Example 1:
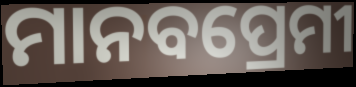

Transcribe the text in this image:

ମାନବପ୍ରେମୀ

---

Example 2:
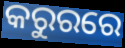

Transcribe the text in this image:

କରୁରରେ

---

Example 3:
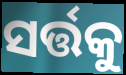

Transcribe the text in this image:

ସର୍ତ୍ତକୁ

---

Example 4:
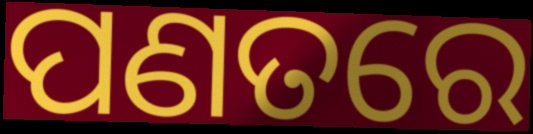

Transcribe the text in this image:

ପଣତରେ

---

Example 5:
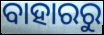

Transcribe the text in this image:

ବାହାରରୁ